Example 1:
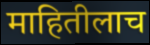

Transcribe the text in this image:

माहितीलाच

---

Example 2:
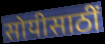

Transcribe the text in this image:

सोयीसाठीं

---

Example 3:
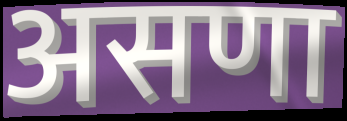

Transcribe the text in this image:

असणा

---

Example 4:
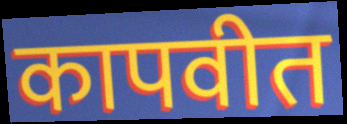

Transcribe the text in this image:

कापवीत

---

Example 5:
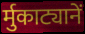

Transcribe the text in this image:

र्मुकाट्यानें